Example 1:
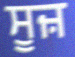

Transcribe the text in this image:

ਸੂਜ਼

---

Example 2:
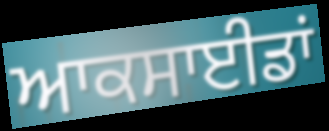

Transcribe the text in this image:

ਆਕਸਾਈਡਾਂ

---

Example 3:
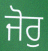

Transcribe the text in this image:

ਜੋਰੁ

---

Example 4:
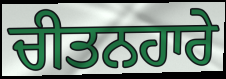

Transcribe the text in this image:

ਚੀਤਨਹਾਰੇ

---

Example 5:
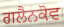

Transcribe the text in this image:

ਗਲੈਨਕੋਵ